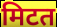
मिटत